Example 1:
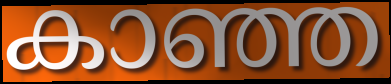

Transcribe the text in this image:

കാഞ്ഞ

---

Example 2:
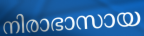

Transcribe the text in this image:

നിരാഭാസായ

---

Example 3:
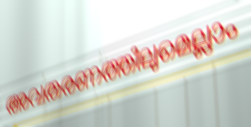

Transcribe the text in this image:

അവതരണത്തിലുമെല്ലാം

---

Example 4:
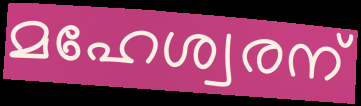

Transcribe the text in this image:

മഹേശ്വരന്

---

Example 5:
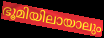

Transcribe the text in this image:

ഭൂമിയിലായാലും